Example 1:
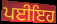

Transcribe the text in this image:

ਪਈਇਹ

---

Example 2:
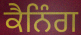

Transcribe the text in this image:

ਕੈਨਿੰਗ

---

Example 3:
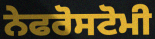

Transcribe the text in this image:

ਨੇਫਰੋਸਟੋਮੀ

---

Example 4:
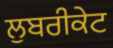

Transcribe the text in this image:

ਲੁਬਰੀਕੇਟ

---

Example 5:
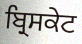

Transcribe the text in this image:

ਬ੍ਰਿਸਕੇਟ